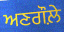
ਅਣਗੌਲ਼ੇ